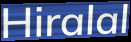
Hiralal